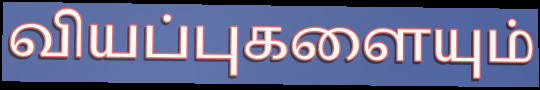
வியப்புகளையும்